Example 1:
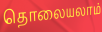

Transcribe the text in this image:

தொலையலாம்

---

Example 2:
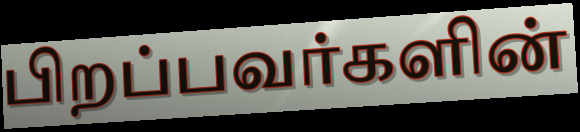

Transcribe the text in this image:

பிறப்பவர்களின்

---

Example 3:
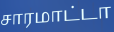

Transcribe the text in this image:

சாரமாட்டா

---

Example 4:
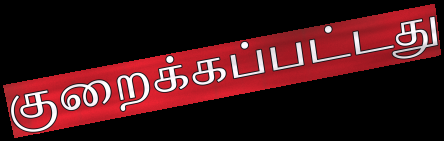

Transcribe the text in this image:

குறைக்கப்பட்டது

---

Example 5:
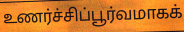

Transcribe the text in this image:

உணர்ச்சிப்பூர்வமாகக்